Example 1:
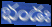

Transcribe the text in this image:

భండః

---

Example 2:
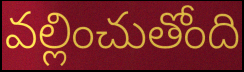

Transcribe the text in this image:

వల్లించుతోంది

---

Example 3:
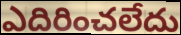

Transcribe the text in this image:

ఎదిరించలేదు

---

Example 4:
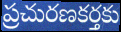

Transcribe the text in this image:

ప్రచురణకర్తకు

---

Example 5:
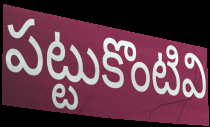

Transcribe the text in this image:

పట్టుకొంటివి